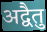
अद्वैतु